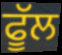
ਫੂੱਲ